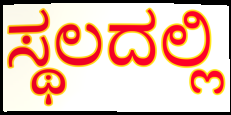
ಸ್ಥಲದಲ್ಲಿ